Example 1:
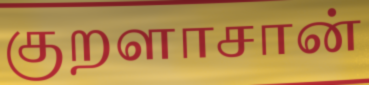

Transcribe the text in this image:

குறளாசான்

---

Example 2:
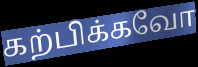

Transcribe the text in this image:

கற்பிக்கவோ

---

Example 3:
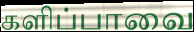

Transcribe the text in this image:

களிப்பாவை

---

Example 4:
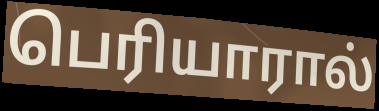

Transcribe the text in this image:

பெரியாரால்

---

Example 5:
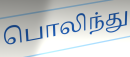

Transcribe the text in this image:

பொலிந்து